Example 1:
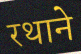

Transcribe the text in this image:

रथाने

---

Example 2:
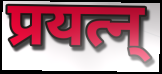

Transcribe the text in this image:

प्रयत्न्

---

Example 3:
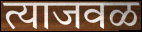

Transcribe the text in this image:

त्याजवळ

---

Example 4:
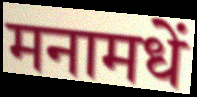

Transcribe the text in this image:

मनामधें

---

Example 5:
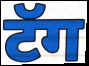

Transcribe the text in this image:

टॅग